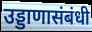
उड्डाणासंबंधी